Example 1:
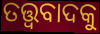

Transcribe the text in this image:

ତତ୍ତ୍ୱବାଦକୁ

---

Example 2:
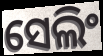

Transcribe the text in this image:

ସେଲିଂ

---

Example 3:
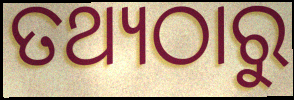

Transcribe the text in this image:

ତଥ୍ୟଠାରୁ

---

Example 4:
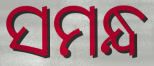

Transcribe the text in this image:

ସମନ୍ଧ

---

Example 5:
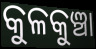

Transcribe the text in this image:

କୁଳକୁଞ୍ଚା